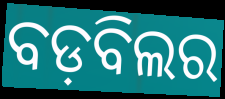
ବଡ଼ବିଲର